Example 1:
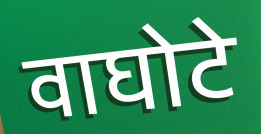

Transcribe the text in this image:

वाघोटे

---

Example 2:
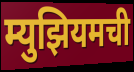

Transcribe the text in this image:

म्युझियमची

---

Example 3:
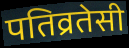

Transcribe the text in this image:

पतिव्रतेसी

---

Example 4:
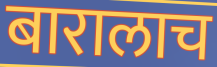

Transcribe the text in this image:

बारालाच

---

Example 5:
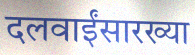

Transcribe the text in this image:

दलवाईंसारख्या